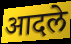
आदले